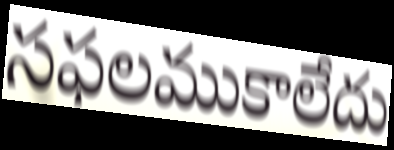
సఫలముకాలేదు